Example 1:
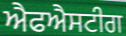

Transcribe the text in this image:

ਐਫਐਸਟੀਗ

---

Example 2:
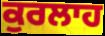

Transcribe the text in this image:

ਕੁਰਲਾਹ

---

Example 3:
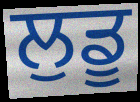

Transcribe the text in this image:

ਲੁਡੂ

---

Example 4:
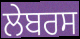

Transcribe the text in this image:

ਲੇਬਰਸ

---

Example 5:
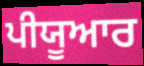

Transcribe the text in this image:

ਪੀਯੂਆਰ